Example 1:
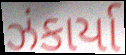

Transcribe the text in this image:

ઝંકાર્યા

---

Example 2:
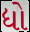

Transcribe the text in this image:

દ્યો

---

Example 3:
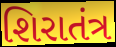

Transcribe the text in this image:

શિરાતંત્ર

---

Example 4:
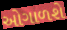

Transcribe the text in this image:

ઓગાળશે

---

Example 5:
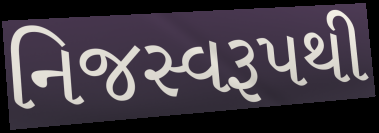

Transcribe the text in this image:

નિજસ્વરૂપથી